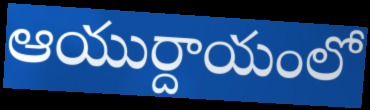
ఆయుర్దాయంలో